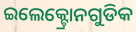
ଇଲେକ୍ଟ୍ରୋନଗୁଡିକ